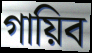
গায়িব